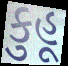
કુહૂ